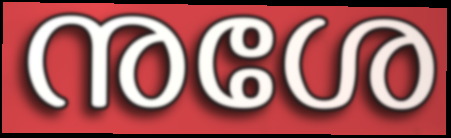
നുശേ